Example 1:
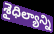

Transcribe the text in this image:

శైధిల్యాన్ని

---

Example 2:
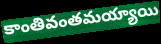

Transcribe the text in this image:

కాంతివంతమయ్యాయి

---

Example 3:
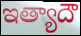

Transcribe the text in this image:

ఇత్యాదౌ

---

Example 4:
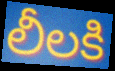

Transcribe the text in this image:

లీలకి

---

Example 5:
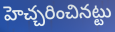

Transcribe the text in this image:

హెచ్చరించినట్టు